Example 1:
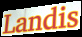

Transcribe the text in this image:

Landis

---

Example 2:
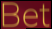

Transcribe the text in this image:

Bet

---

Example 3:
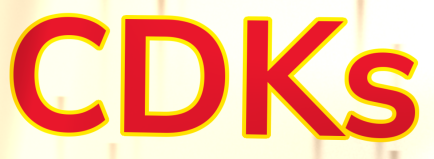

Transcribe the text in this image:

CDKs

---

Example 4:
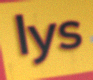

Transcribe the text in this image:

lys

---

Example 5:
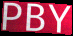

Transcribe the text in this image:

PBY